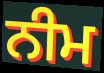
ਨੀਮ